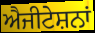
ਐਜੀਟੇਸ਼ਨਾਂ